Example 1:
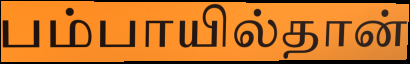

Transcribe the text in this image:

பம்பாயில்தான்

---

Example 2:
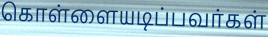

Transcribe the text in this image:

கொள்ளையடிப்பவர்கள்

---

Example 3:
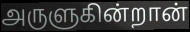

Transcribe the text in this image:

அருளுகின்றான்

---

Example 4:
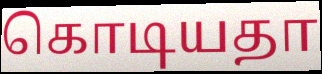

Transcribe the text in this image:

கொடியதா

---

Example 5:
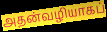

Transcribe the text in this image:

அதன்வழியாகப்